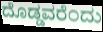
ದೊಡ್ಡವರೆಂದು